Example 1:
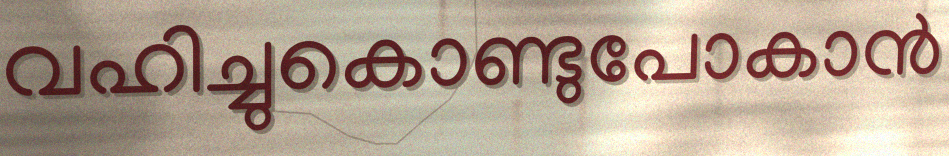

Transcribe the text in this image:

വഹിച്ചുകൊണ്ടുപോകാൻ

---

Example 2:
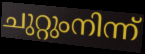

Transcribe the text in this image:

ചുറ്റുംനിന്ന്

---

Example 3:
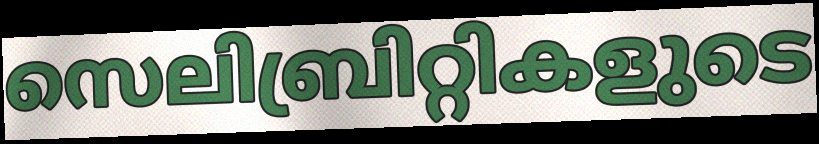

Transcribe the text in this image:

സെലിബ്രിറ്റികളുടെ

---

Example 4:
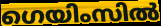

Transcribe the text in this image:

ഗെയിംസിൽ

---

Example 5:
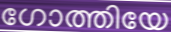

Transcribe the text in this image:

ഗോത്തിയേ